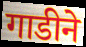
गाडीने